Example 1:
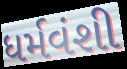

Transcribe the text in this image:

ધર્મવંશી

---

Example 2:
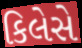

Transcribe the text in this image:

કિલેસે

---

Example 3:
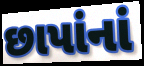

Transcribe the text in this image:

છાપાંનાં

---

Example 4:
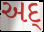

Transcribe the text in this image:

અદ્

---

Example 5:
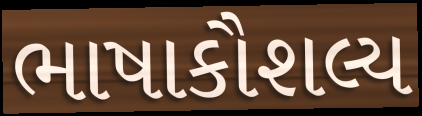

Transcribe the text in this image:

ભાષાકૌશલ્ય